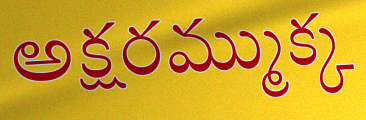
అక్షరమ్ముక్క